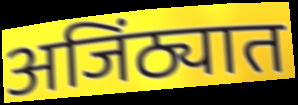
अजिंठ्यात